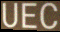
UEC